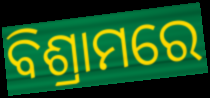
ବିଶ୍ରାମରେ